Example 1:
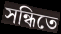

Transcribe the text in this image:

সন্ধিতে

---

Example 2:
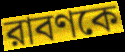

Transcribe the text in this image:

রাবণকে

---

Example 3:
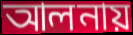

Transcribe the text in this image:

আলনায়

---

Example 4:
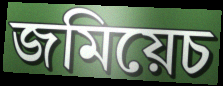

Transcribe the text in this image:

জমিয়েচ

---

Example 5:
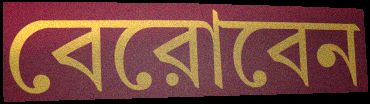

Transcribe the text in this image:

বেরোবেন